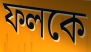
ফলকে